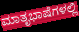
ಮಾತೃಭಾಷೆಗಳಲ್ಲಿ